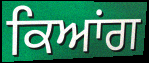
ਕਿਆਂਗ